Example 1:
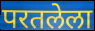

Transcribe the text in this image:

परतलेला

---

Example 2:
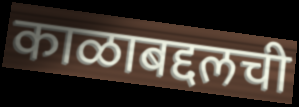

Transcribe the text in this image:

काळाबद्दलची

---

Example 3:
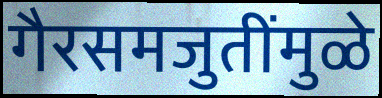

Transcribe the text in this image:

गैरसमजुतींमुळे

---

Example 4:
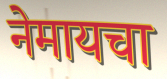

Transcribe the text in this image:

नेमायचा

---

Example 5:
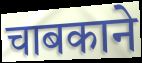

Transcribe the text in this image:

चाबकाने